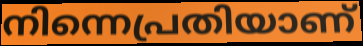
നിന്നെപ്രതിയാണ്